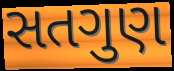
સતગુણ